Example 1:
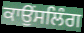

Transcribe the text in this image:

ਕਾਉੰਸਲਿੰਗ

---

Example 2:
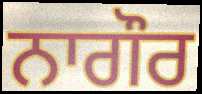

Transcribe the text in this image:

ਨਾਗੌਰ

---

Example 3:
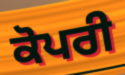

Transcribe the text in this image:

ਕੋਪਰੀ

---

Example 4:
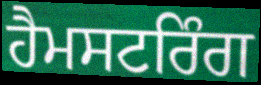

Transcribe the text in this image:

ਹੈਮਸਟਰਿੰਗ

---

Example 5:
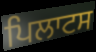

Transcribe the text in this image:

ਪਿਲਾਟਸ